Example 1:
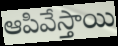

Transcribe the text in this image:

ఆపివేస్తాయి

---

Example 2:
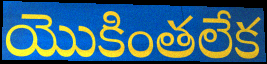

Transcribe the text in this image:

యొకింతలేక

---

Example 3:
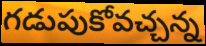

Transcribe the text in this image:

గడుపుకోవచ్చన్న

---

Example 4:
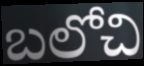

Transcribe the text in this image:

బలోచి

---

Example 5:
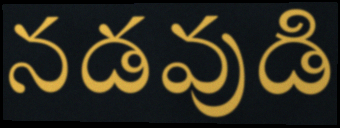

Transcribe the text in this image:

నడవుడి